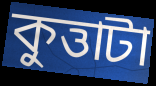
কুত্তাটা